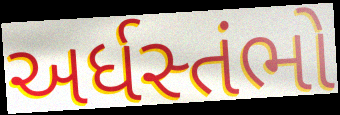
અર્ધસ્તંભો